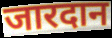
जारदान